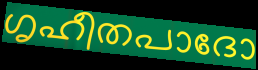
ഗൃഹീതപാദോ